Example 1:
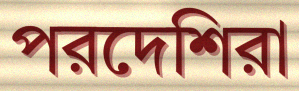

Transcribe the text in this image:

পরদেশিরা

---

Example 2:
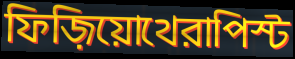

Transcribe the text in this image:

ফিজ়িয়োথেরাপিস্ট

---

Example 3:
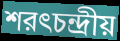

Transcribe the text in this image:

শরৎচন্দ্রীয়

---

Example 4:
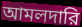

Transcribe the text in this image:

আমলদারি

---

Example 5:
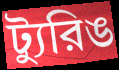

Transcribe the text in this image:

ট্যুরিঙ